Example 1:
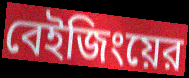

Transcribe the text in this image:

বেইজিংয়ের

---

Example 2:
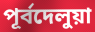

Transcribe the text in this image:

পূর্বদেলুয়া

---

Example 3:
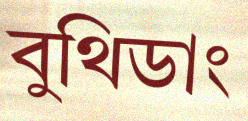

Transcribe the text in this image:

বুথিডাং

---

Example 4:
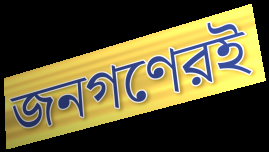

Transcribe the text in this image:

জনগণেরই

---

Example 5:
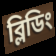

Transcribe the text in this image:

ব্লিডিং